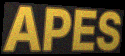
APES